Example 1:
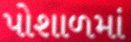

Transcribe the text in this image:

પોશાળમાં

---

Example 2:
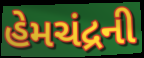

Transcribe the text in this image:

હેમચંદ્રની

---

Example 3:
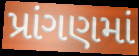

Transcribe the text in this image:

પ્રાંગણમાં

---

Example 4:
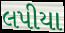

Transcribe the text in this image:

લપીયા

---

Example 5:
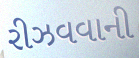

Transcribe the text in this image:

રીઝવવાની